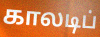
காலடிப்